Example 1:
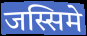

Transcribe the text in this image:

जस्सिमे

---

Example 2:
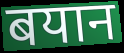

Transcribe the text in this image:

बयान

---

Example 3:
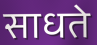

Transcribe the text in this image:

साधते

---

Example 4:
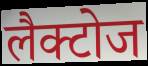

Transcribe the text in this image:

लैक्टोज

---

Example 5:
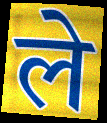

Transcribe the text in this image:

ले